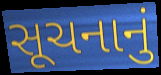
સૂચનાનું